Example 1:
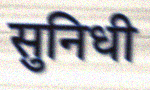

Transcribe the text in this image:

सुनिधी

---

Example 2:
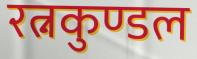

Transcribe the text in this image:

रत्नकुण्डल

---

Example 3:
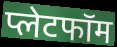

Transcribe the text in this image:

प्लेटफॉम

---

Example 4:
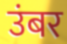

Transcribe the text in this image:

उंबर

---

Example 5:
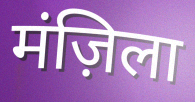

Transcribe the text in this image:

मंज़िला